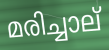
മരിച്ചാല്